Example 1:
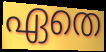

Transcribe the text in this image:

ഏതെ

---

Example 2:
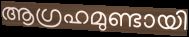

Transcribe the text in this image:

ആഗ്രഹമുണ്ടായി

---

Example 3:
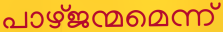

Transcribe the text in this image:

പാഴ്ജന്മമെന്ന്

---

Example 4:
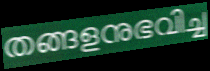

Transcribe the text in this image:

തങ്ങളനുഭവിച്ച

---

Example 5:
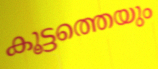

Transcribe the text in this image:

കൂട്ടത്തെയും